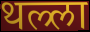
थल्ला